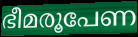
ഭീമരൂപേണ